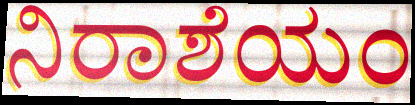
ನಿರಾಶೆಯಂ